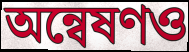
অন্বেষণও